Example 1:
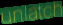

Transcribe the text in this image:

unlatch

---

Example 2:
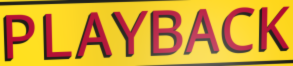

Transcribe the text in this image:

PLAYBACK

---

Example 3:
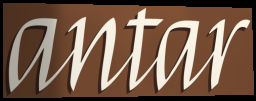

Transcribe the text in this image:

antar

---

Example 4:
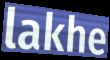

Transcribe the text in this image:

lakhe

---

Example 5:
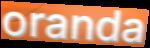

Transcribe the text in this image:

oranda